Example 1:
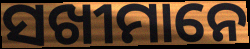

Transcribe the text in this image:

ସଖୀମାନେ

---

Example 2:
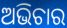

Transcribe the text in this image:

ଅଭିଚାର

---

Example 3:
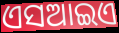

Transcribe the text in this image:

ଏସଆଇଏ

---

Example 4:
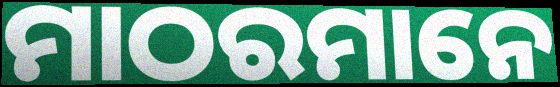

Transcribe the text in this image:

ମାଠରମାନେ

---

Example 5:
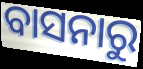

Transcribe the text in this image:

ବାସନାରୁ